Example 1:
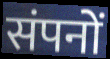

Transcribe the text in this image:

संपनों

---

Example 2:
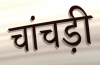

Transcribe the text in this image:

चांचड़ी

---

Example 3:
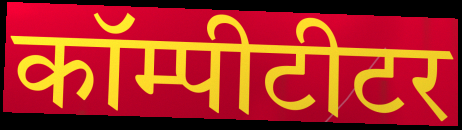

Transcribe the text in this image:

कॉम्पीटीटर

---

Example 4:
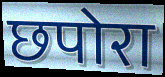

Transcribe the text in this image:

छपोरा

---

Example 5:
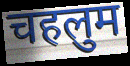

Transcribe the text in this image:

चहलुम